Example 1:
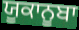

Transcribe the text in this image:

ਯੂਕਾਨੂਬਾ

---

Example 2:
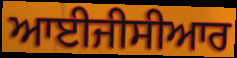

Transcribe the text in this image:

ਆਈਜੀਸੀਆਰ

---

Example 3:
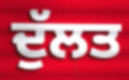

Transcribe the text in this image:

ਦੁੱਲਤ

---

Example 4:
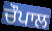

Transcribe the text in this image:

ਚੌਪਾਲ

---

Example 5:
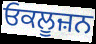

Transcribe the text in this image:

ਓਕਲੂਜ਼ਨ